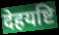
देहयष्टि